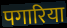
पगारिया